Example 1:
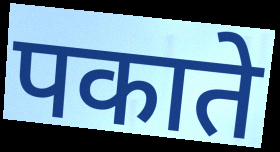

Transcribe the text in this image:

पकाते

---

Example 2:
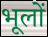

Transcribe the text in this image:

भूलों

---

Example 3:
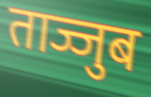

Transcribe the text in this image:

ताज्जुब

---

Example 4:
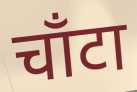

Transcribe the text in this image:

चाँटा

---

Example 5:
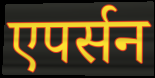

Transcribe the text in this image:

एपर्सन